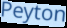
Peyton